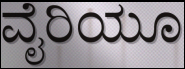
ವೈರಿಯೂ